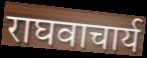
राघवाचार्य